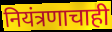
नियंत्रणाचाही